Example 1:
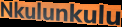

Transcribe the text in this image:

Nkulunkulu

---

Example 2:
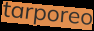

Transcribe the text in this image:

tarporeo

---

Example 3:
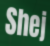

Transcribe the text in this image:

Shej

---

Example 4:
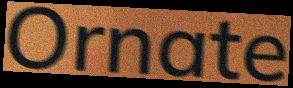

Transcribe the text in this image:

Ornate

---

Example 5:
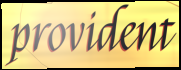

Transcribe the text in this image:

provident